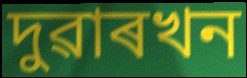
দুৱাৰখন